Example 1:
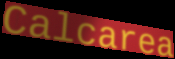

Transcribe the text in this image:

Calcarea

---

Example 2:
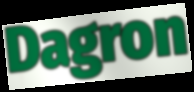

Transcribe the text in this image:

Dagron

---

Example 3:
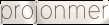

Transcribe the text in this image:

projonmer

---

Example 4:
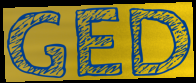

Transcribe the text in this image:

GED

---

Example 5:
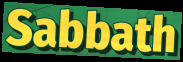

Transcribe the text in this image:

Sabbath